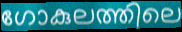
ഗോകുലത്തിലെ